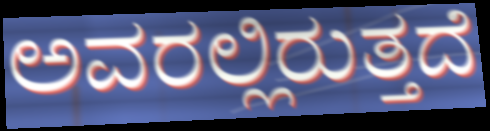
ಅವರಲ್ಲಿರುತ್ತದೆ